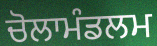
ਚੋਲਾਮੰਡਲਮ